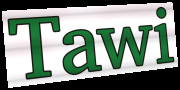
Tawi